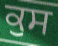
ਕੁਸ